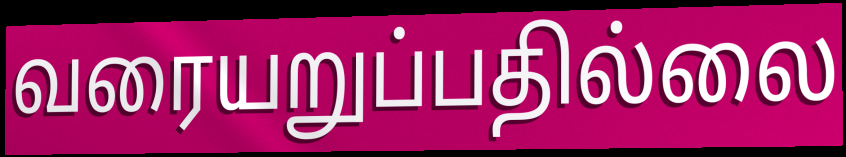
வரையறுப்பதில்லை